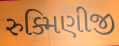
રુક્મિણીજી